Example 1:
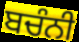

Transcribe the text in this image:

ਬਚੰਨੀ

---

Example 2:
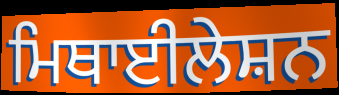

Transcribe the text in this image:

ਮਿਥਾਈਲੇਸ਼ਨ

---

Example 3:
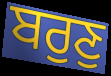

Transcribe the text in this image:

ਬਰੁਣੁ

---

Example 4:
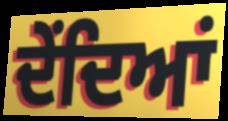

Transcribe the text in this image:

ਦੇਂਦਿਆਂ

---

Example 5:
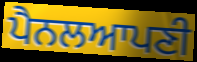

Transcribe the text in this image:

ਪੈਨਲਆਪਣੀ